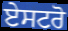
ਏਸਟਰੋ